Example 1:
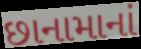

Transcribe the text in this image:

છાનામાનાં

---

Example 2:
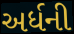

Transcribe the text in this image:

અર્ધની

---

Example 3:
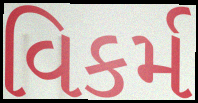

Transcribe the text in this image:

વિકર્મ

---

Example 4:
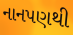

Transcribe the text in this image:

નાનપણથી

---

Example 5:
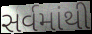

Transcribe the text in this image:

સર્વમાંથી